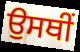
ਉਸਥੀਂ